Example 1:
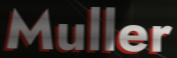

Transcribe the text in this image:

Muller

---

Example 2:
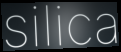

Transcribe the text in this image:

silica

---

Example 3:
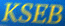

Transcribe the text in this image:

KSEB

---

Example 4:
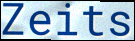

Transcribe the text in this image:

Zeits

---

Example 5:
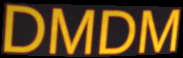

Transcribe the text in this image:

DMDM